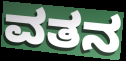
ವತನ